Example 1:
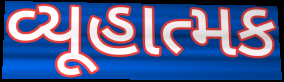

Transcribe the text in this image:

વ્યૂહાત્મક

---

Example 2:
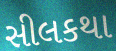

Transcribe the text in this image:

સીલકથા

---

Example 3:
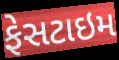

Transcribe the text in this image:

ફેસટાઇમ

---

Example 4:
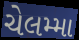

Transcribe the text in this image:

ચેલમ્મા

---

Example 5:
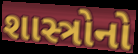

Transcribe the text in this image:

શાસ્ત્રોનો